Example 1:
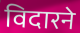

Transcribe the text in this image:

विदारने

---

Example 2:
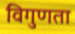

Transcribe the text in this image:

विगुणता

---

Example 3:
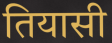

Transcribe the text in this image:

तियासी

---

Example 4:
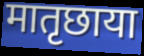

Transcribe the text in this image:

मातृछाया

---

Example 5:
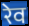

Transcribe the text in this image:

रेव